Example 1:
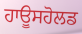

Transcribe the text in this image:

ਹਾਊਸਹੋਲਡ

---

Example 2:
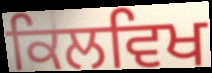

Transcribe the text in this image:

ਕਿਲਵਿਖ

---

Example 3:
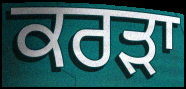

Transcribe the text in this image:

ਕਰੜਾ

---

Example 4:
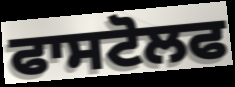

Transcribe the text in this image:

ਫਾਸਟੋਲਫ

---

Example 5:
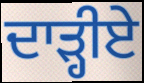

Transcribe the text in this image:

ਦਾੜ੍ਹੀਏ